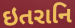
ઇતરાનિ